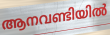
ആനവണ്ടിയിൽ